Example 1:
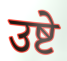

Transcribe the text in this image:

उष्टे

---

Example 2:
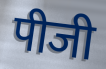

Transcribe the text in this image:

पीजी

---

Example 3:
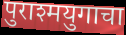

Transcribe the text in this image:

पुराश्मयुगाचा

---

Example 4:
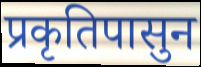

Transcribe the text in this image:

प्रकृतिपासुन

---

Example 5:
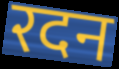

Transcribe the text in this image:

रदन